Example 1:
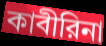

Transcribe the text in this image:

কাবীরিনা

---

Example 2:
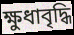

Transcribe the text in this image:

ক্ষুধাবৃদ্ধি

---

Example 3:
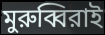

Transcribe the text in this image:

মুরুব্বিরাই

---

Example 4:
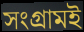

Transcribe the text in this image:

সংগ্রামই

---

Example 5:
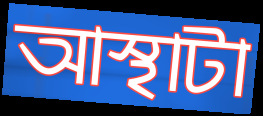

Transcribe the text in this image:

আস্থাটা